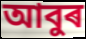
আবুৰ